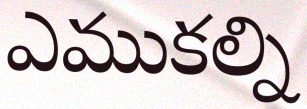
ఎముకల్ని